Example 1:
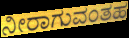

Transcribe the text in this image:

ನೀರಾಗುವಂತಹ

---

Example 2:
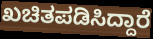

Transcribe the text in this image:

ಖಚಿತಪಡಿಸಿದ್ದಾರೆ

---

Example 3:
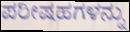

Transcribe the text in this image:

ಪರೀಷಹಗಳನ್ನು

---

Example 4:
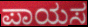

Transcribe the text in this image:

ಪಾಯಸ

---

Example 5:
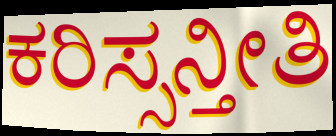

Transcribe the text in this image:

ಕರಿಸ್ಸನ್ತೀತಿ